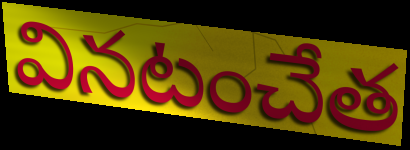
వినటంచేత